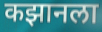
कझानला